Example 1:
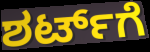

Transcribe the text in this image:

ಶರ್ಟ್‌ಗೆ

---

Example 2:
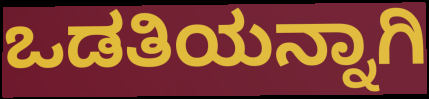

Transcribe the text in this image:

ಒಡತಿಯನ್ನಾಗಿ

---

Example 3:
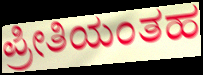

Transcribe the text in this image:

ಪ್ರೀತಿಯಂತಹ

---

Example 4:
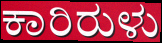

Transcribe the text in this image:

ಕಾರಿರುಳು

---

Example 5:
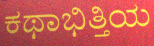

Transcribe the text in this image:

ಕಥಾಭಿತ್ತಿಯ